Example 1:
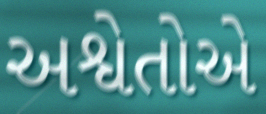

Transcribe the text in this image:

અશ્વેતોએ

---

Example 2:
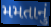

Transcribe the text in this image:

મમતાનું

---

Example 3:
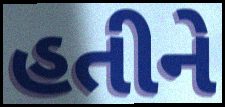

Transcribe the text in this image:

હતીને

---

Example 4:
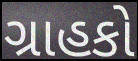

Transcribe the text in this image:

ગ્રાહકો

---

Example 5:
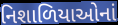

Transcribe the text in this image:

નિશાળિયાઓનાં